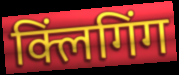
क्लिंगिंग